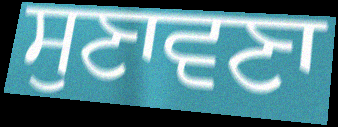
ਸੁਣਾਵਣਾ